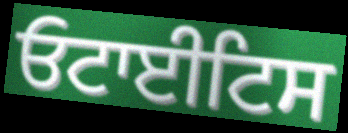
ਓਟਾਈਟਿਸ